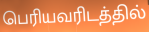
பெரியவரிடத்தில்